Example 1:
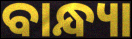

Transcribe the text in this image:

ବାନ୍ଧ୍ୟା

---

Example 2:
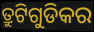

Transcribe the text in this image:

ତ୍ରୁଟିଗୁଡିକର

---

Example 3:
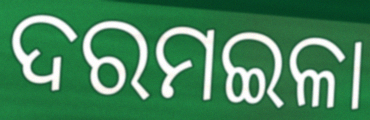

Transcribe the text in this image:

ଦରମଇଳା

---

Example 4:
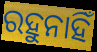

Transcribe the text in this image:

ରହୁନାହିଁ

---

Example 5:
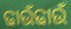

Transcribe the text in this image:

ଢାଉଁଢାଉଁ